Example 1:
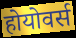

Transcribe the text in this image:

होयोवर्स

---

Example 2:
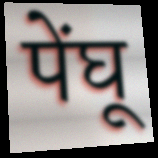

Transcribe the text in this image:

पेंघू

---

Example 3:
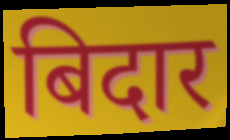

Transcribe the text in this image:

बिदार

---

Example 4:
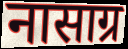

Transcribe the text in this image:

नासाग्र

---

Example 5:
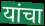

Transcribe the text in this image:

यांचा